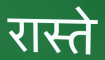
रास्ते